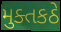
મુક્તકઠે